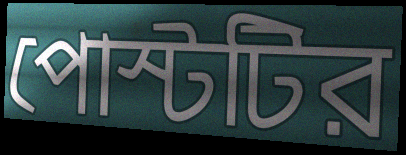
পোস্টটির